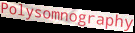
Polysomnography